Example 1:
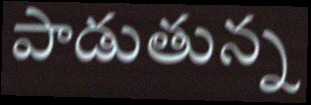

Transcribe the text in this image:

పాడుతున్న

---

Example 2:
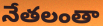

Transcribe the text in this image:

నేతలంతా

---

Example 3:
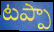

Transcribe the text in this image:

టప్పా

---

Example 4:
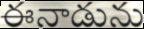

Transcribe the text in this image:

ఈనాడును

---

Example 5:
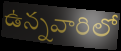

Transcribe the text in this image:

ఉన్నవారిలో